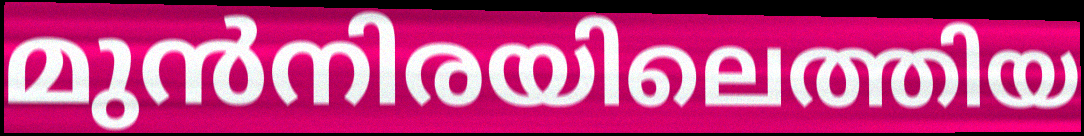
മുൻനിരയിലെത്തിയ